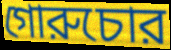
গোরুচোর